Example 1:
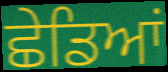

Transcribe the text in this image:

ਛੇਡਿਆਂ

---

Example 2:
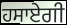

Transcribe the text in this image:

ਹਸਾਏਗੀ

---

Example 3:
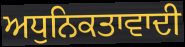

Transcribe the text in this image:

ਅਧੁਨਿਕਤਾਵਾਦੀ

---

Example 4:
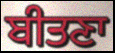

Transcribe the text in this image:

ਬੀਤਣਾ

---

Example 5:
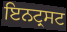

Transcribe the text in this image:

ਇਨਟ੍ਰਸਟ